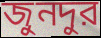
জুনদুর